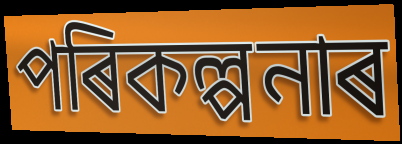
পৰিকল্পনাৰ